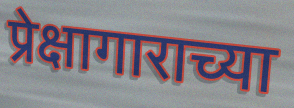
प्रेक्षागाराच्या